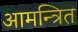
आमन्त्रित